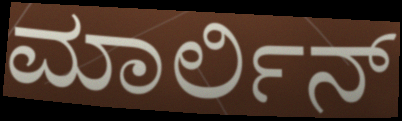
ಮಾರ್ಲಿನ್